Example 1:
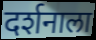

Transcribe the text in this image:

दर्शनाला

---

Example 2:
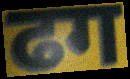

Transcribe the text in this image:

ढग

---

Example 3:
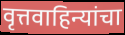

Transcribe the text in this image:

वृत्तवाहिन्यांचा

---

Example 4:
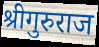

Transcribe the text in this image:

श्रीगुरुराज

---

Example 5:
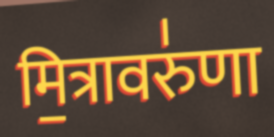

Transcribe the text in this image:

मि॒त्रावरु॑णा